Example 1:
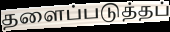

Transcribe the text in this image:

தளைப்படுத்தப்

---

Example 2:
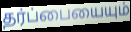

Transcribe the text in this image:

தர்ப்பையையும்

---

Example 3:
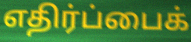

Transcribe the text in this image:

எதிர்ப்பைக்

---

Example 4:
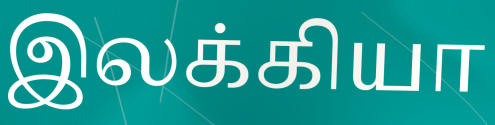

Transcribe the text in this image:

இலக்கியா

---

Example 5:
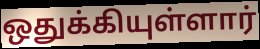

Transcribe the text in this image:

ஒதுக்கியுள்ளார்